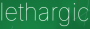
lethargic